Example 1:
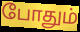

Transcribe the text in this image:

போதும்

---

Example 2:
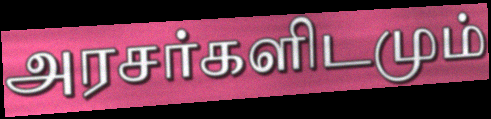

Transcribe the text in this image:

அரசர்களிடமும்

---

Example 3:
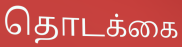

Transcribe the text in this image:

தொடக்கை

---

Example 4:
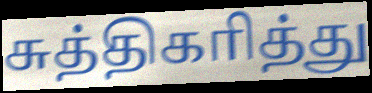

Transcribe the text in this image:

சுத்திகரித்து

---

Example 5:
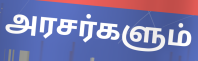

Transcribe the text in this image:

அரசர்களும்